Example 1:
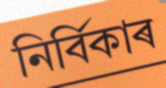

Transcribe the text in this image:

নিৰ্বিকাৰ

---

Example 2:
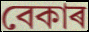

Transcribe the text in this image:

বেকাৰ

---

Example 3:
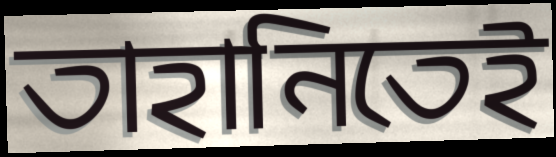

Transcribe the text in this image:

তাহানিতেই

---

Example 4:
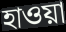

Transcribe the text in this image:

হাওয়া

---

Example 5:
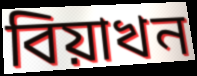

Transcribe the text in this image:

বিয়াখন